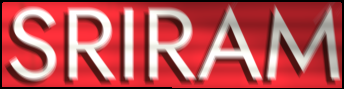
SRIRAM